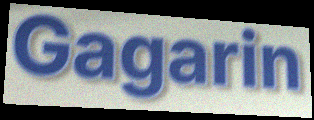
Gagarin